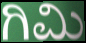
ಗಿಮಿ